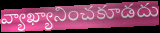
వ్యాఖ్యానించకూడదు